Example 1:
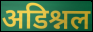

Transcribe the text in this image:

अडिश्नल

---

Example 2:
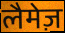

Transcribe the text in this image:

लैमेज़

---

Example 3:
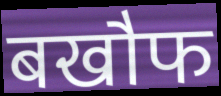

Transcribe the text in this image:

बखौफ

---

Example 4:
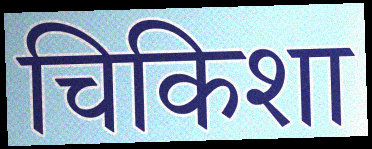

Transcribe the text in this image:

चिकिशा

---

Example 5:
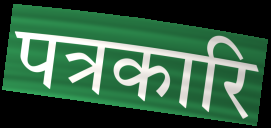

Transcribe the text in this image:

पत्रकारि